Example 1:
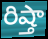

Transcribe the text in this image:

రిష్తా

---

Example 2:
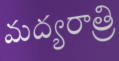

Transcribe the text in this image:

మద్యరాత్రి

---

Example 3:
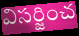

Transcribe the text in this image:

విసర్జించ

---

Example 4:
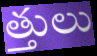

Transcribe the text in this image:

త్తులు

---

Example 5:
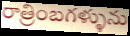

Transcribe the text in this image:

రాత్రింబగళ్ళును